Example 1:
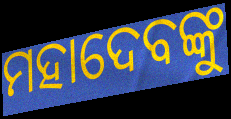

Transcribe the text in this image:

ମହାଦେବଙ୍କୁ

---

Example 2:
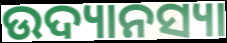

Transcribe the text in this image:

ଉଦ୍ୟାନସ୍ୟା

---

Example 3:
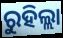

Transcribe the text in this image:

ରୁହିଲ୍ଲା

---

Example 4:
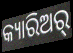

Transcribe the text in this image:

କ୍ୟାରିଅର୍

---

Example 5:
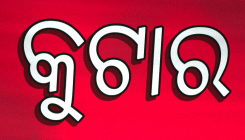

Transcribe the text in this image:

କୁଟାର